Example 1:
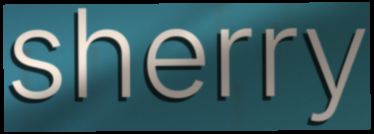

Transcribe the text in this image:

sherry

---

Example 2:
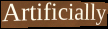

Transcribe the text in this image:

Artificially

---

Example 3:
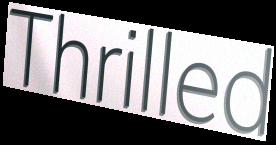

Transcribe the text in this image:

Thrilled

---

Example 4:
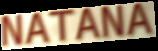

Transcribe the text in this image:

NATANA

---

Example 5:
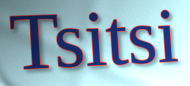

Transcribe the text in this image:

Tsitsi